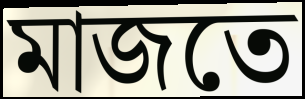
মাজতে